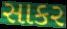
સાકર